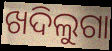
ଖଦିଲୁଗା